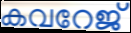
കവറേജ്